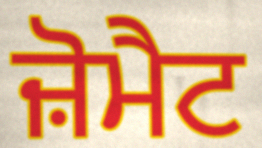
ਜ਼ੋਮੈਟ